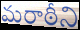
మరాఠీని